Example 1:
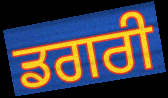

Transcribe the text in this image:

ਡਗਰੀ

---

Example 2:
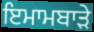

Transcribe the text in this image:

ਇਮਾਮਬਾੜੇ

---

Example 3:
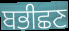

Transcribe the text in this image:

ਬਭੀਛਣ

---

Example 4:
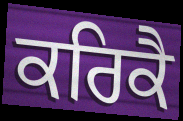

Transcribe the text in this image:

ਕਰਿਕੈ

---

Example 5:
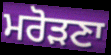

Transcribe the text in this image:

ਮਰੋੜਣਾ